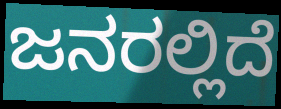
ಜನರಲ್ಲಿದೆ